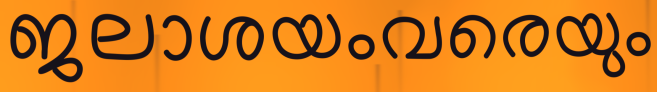
ജലാശയംവരെയും